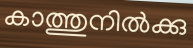
കാത്തുനിൽക്കു